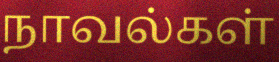
நாவல்கள்